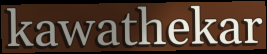
kawathekar